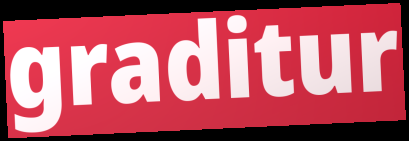
graditur